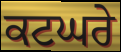
ਕਟਘਰੇ